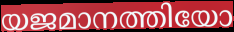
യജമാനത്തിയോ